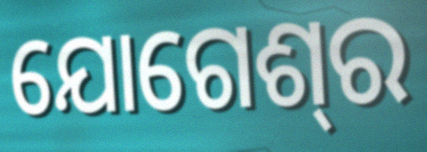
ଯୋଗେଶ୍‍ର